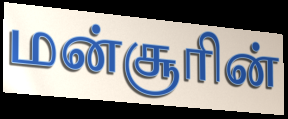
மன்சூரின்